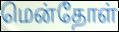
மென்தோள்